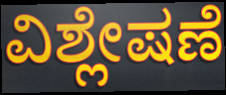
ವಿಶ್ಲೇಷಣೆ